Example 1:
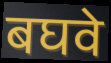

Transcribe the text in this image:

बघवे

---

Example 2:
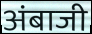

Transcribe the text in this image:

अंबाजी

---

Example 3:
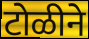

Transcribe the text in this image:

टोळीने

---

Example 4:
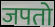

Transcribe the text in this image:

जपतो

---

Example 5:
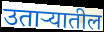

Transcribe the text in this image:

उताऱ्यातील